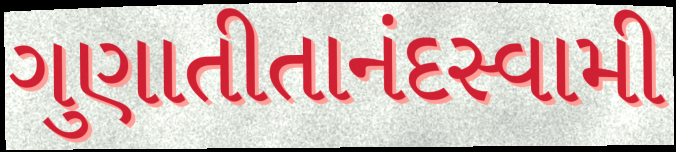
ગુણાતીતાનંદસ્વામી